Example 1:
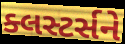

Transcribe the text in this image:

ક્લસ્ટર્સને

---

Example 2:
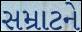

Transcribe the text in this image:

સમ્રાટને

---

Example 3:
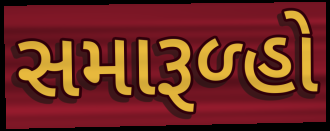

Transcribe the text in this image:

સમારૂળ્હો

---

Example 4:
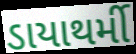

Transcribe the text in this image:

ડાયાથર્મી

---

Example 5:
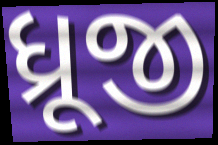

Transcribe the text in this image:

ધ્રૂજી